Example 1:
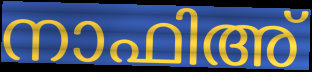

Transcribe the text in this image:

നാഫിഅ്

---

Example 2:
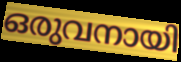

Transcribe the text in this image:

ഒരുവനായി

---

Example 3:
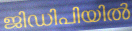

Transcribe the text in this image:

ജിഡിപിയിൽ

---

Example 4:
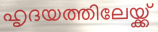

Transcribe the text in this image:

ഹൃദയത്തിലേയ്ക്ക്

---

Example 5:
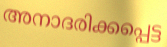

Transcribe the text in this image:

അനാദരിക്കപ്പെട്ട